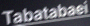
Tabatabaei